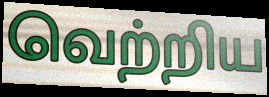
வெற்றிய